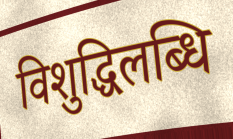
विशुद्धिलब्धि